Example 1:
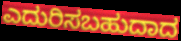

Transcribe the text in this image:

ಎದುರಿಸಬಹುದಾದ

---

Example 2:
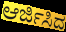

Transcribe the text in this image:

ಆರ್ಜಿಸಿದ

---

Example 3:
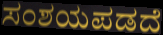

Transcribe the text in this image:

ಸಂಶಯಪಡದೆ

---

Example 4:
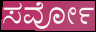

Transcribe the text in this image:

ಸರ್ವೋ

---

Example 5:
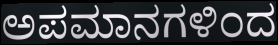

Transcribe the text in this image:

ಅಪಮಾನಗಳಿಂದ